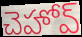
చెహోవ్